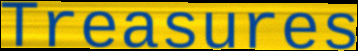
Treasures